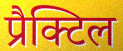
प्रैक्टिल